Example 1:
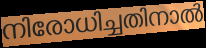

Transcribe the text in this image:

നിരോധിച്ചതിനാൽ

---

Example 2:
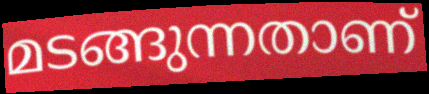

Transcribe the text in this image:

മടങ്ങുന്നതാണ്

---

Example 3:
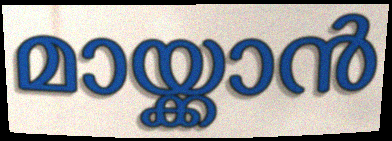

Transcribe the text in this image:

മായ്ക്കാൻ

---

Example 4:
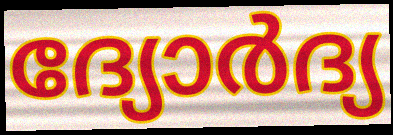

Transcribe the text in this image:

ദ്യോർദ്യ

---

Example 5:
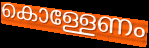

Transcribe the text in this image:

കൊള്ളേണം